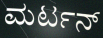
ಮರ್ಟನ್